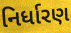
નિર્ધારણ